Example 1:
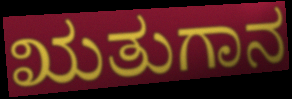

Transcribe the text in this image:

ಋತುಗಾನ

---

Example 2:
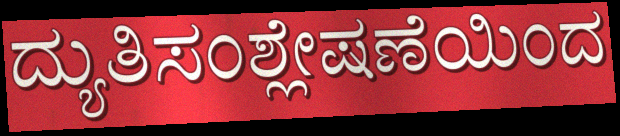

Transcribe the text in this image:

ದ್ಯುತಿಸಂಶ್ಲೇಷಣೆಯಿಂದ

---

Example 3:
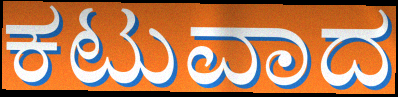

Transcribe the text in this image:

ಕಟುವಾದ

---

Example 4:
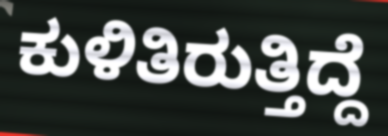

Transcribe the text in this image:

ಕುಳಿತಿರುತ್ತಿದ್ದೆ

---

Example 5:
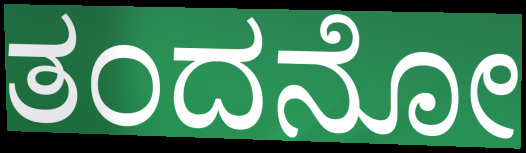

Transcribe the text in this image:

ತಂದನೋ